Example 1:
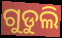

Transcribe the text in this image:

ଗୁଡୁଲି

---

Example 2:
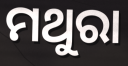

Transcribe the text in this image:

ମଥୁରା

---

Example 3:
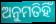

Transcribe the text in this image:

ଅନୁମତିହିଁ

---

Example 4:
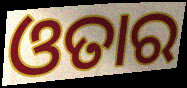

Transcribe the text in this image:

ଓତାର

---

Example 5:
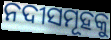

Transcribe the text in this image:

ନଦୀସମୂହକୁ